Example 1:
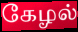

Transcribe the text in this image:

கேழல்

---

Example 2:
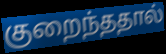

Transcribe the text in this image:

குறைந்ததால்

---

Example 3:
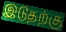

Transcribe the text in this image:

இடுதற்கு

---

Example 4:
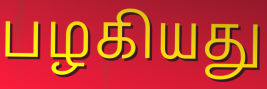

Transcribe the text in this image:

பழகியது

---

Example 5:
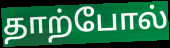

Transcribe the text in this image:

தாற்போல்